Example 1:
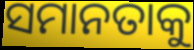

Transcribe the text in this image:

ସମାନତାକୁ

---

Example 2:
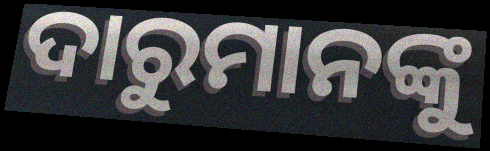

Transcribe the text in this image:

ଦାରୁମାନଙ୍କୁ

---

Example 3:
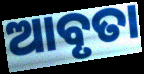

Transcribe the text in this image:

ଆବୃତା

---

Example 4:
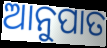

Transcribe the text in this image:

ଆନୁପାତ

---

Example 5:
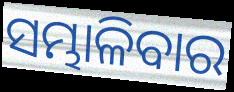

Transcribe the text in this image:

ସମ୍ଭାଳିବାର